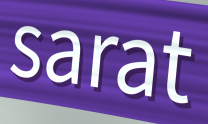
sarat